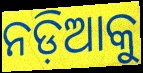
ନଡ଼ିଆକୁ